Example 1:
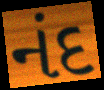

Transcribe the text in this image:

નંદ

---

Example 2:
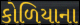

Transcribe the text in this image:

કોળિયાના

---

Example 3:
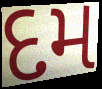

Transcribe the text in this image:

દમ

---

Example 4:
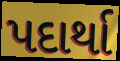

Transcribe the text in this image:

પદાર્થા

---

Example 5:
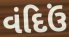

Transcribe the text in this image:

વંદિઉં